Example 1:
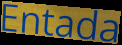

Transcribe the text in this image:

Entada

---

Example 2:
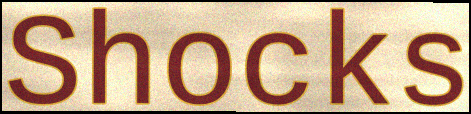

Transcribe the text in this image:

Shocks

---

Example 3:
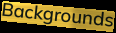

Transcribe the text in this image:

Backgrounds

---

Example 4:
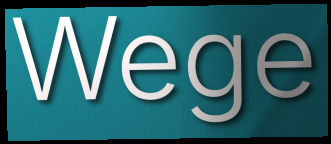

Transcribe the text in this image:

Wege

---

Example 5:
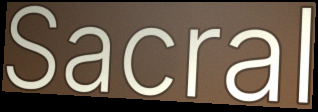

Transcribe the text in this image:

Sacral